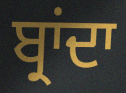
ਬ੍ਰਾਂਦਾ